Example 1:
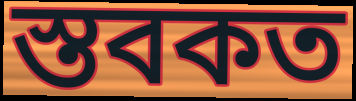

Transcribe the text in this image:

স্তবকত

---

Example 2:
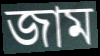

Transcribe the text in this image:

জাম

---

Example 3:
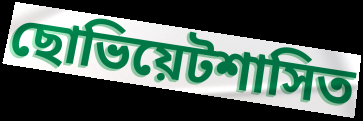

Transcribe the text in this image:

ছোভিয়েটশাসিত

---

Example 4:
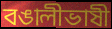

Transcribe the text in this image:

বঙালীভাষী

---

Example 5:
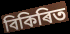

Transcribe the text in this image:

বিকিৰিত